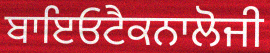
ਬਾਇਓਟੈਕਨਾਲੋਜੀ